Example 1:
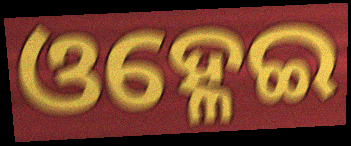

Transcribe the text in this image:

ଓହ୍ଳେଇ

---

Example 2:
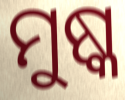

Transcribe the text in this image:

ମୁଷ୍କ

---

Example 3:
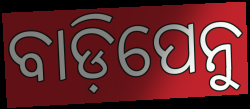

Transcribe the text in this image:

ବାଡ଼ିପେନୁ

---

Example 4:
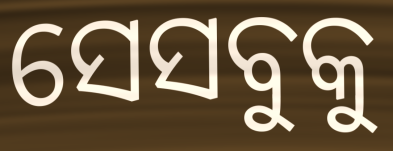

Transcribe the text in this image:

ସେସବୁକୁ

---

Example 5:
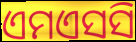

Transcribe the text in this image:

ଏମଏସସି